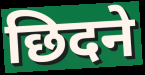
छिदने